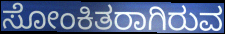
ಸೋಂಕಿತರಾಗಿರುವ